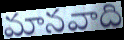
మానవాది